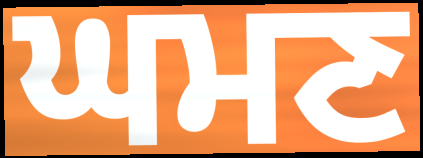
ਘਮਣ